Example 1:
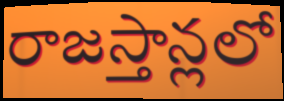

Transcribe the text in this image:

రాజస్తాన్లలో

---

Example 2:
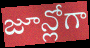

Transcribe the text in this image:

జూన్లోగా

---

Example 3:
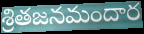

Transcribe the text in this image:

శ్రితజనమందార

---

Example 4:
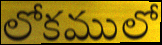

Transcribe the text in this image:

లోకములో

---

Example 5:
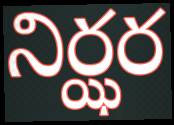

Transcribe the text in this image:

నిర్ఝర